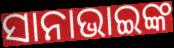
ସାନାଭାଇଙ୍କ